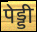
पेड्डी